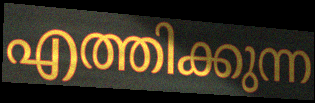
എത്തിക്കുന്ന